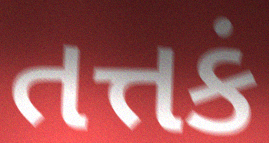
તત્તકં